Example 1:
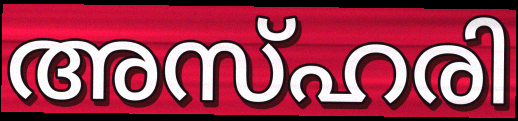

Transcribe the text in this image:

അസ്ഹരി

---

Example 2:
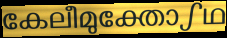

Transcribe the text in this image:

കേലീമുക്തോഽഥ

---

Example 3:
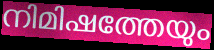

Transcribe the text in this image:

നിമിഷത്തേയും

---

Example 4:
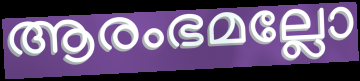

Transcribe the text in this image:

ആരംഭമല്ലോ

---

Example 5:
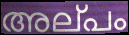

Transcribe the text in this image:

അല്‌പം